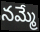
నమ్మే